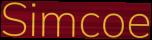
Simcoe